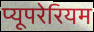
प्यूपरेरियम